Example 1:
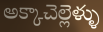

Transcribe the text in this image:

అక్కాచెల్లెళ్ళు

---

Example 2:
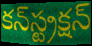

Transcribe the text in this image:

కన్‍స్ట్రక్షన్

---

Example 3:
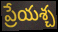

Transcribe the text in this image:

ప్రేయశ్చ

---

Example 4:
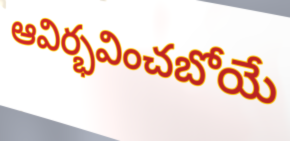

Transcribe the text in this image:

ఆవిర్భవించబోయే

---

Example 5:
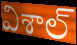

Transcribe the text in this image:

విశాల్